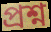
প্ৰশ্ন